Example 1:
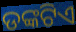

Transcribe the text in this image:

ଡଙ୍କଟିଏ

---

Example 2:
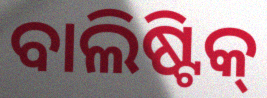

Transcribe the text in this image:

ବାଲିଷ୍ଟିକ୍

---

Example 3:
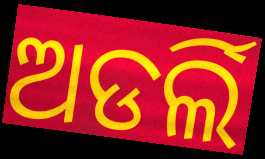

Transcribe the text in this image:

ଅଡର୍ଲି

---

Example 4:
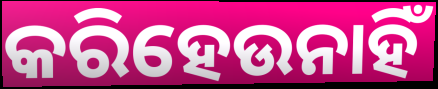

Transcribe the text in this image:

କରିହେଉନାହିଁ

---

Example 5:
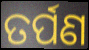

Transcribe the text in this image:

ତର୍ପଣ